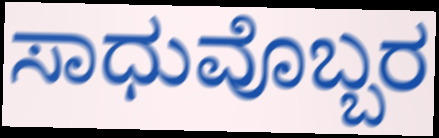
ಸಾಧುವೊಬ್ಬರ